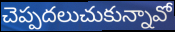
చెప్పదలుచుకున్నావో